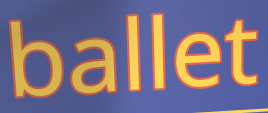
ballet